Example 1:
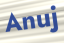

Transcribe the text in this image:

Anuj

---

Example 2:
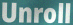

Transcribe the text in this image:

Unroll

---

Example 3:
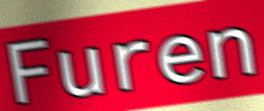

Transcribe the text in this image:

Furen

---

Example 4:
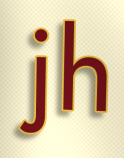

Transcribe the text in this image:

jh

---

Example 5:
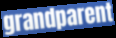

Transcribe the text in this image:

grandparent